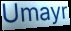
Umayr